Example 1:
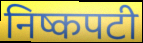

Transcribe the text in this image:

निष्कपटी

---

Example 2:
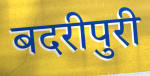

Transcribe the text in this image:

बदरीपुरी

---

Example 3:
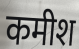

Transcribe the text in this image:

कमीश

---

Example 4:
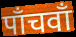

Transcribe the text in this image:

पाँचवाँ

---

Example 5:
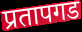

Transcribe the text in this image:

प्रतापगड